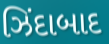
ઝિંદાબાદ